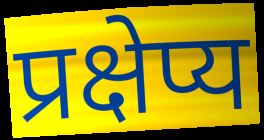
प्रक्षेप्य